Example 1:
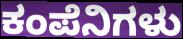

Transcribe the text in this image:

ಕಂಪೆನಿಗಳು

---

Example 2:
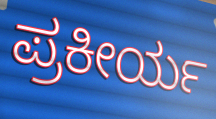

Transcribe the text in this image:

ಪ್ರಕೀರ್ಯ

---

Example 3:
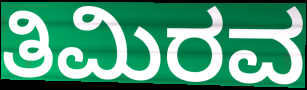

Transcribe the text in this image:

ತಿಮಿರವ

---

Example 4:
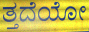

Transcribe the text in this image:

ತ್ತದೆಯೋ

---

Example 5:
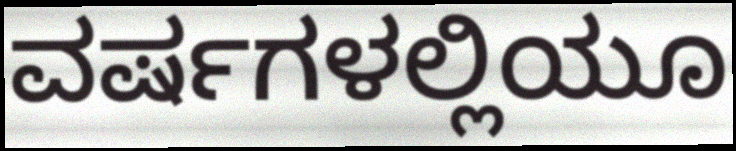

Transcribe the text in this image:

ವರ್ಷಗಳಲ್ಲಿಯೂ